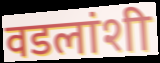
वडलांशी